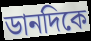
ডানদিকে